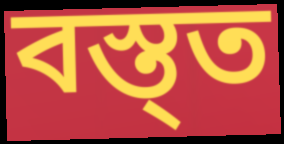
বস্ত্ত